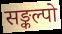
सङ्कल्पो